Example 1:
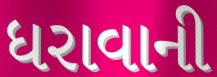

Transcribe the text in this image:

ધરાવાની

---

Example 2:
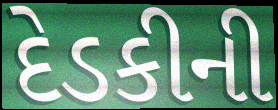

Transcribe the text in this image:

દેડકીની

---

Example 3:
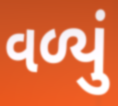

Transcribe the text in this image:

વળ્યું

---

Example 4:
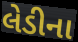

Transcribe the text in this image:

લેડીના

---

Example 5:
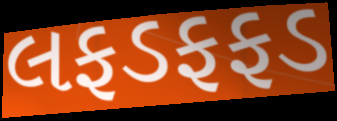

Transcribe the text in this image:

લફડફફડ